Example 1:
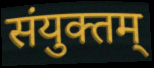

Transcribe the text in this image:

संयुक्तम्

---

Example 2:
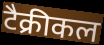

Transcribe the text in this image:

टैक्रीकल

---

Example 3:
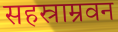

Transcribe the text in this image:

सहस्राम्रवन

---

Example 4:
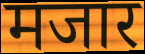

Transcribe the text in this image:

मजार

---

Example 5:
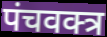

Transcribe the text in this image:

पंचवक्त्र